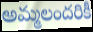
అమ్మలందరికీ